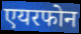
एयरफोन